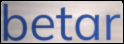
betar